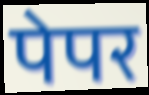
पेपर